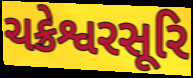
ચક્રેશ્વરસૂરિ